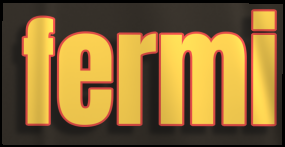
fermi